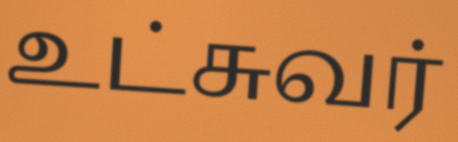
உட்சுவர்